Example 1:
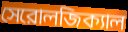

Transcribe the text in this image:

সেরোলজিক্যাল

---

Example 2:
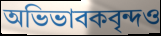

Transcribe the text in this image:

অভিভাবকবৃন্দও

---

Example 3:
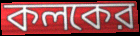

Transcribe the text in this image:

কলকের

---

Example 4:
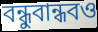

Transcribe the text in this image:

বন্ধুবান্ধবও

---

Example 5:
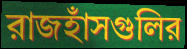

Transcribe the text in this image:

রাজহাঁসগুলির